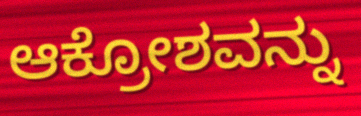
ಆಕ್ರೋಶವನ್ನು